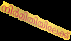
നിർമിതിയിലേക്ക്